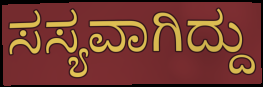
ಸಸ್ಯವಾಗಿದ್ದು